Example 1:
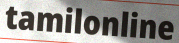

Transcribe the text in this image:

tamilonline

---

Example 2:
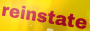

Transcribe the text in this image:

reinstate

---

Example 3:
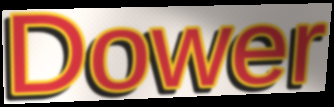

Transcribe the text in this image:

Dower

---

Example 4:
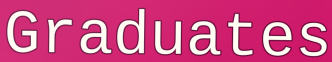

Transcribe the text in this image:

Graduates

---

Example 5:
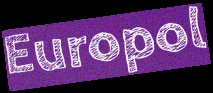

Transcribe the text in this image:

Europol